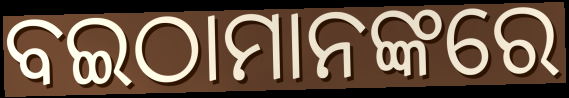
ବଇଠାମାନଙ୍କରେ